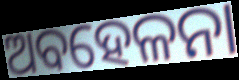
ଅବହେଳନା